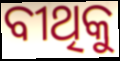
ବୀଥିକୁ